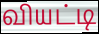
வியட்டி